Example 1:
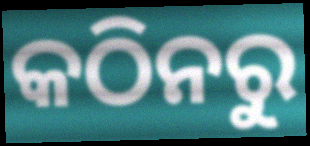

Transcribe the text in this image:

କଠିନରୁ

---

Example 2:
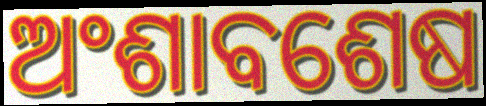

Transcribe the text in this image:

ଅଂଶାବଶେଷ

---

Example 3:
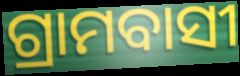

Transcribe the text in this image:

ଗ୍ରାମବାସୀ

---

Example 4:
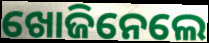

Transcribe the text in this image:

ଖୋଜିନେଲେ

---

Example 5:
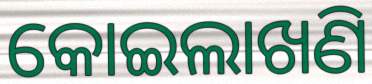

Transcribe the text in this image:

କୋଇଲାଖଣି